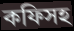
কফিসহ